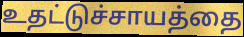
உதட்டுச்சாயத்தை